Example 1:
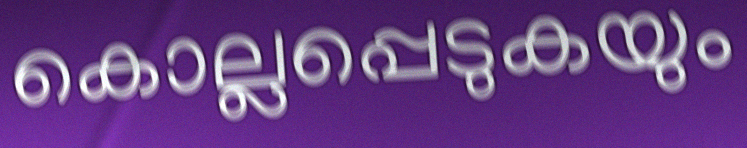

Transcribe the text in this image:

കൊല്ലപ്പെടുകയും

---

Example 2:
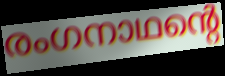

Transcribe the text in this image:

രംഗനാഥന്റെ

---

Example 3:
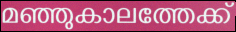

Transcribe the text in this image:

മഞ്ഞുകാലത്തേക്ക്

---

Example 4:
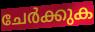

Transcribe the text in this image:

ചേർക്കുക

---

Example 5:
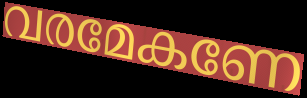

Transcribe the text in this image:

വരമേകണേ